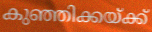
കുഞ്ഞിക്കയ്ക്ക്